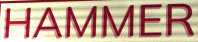
HAMMER